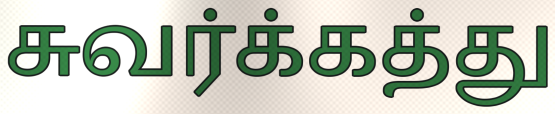
சுவர்க்கத்து